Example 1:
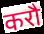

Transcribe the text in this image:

करौ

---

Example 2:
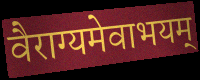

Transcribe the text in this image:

वैराग्यमेवाभयम्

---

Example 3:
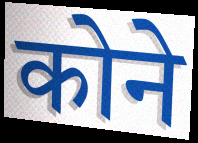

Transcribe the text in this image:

कोने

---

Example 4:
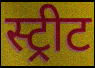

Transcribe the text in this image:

स्ट्रीट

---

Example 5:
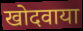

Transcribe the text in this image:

खोदवाया